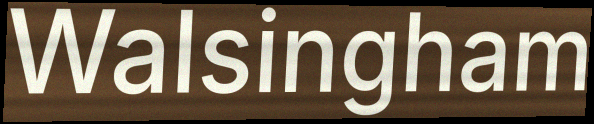
Walsingham